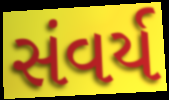
સંવર્ય